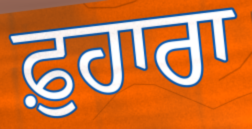
ਫ਼ੁਹਾਰਾ